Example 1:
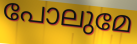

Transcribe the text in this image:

പോലുമേ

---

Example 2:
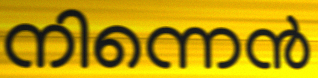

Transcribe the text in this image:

നിന്നെൻ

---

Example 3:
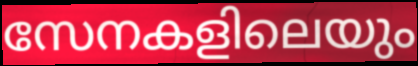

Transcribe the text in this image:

സേനകളിലെയും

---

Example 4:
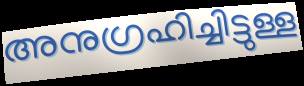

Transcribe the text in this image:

അനുഗ്രഹിച്ചിട്ടുള്ള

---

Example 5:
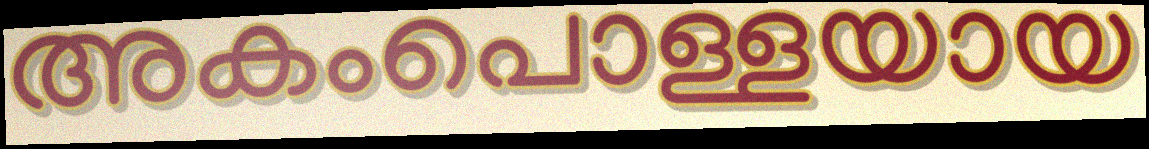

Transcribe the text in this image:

അകംപൊള്ളയായ